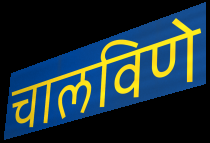
चालविणे